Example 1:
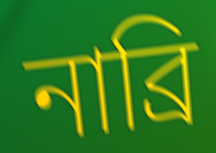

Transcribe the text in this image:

নাব্রি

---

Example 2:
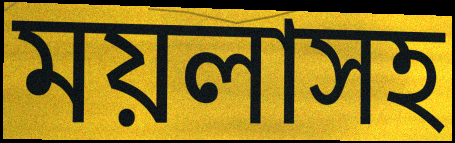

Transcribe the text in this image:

ময়লাসহ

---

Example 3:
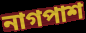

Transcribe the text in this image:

নাগপাশ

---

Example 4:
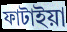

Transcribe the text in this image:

ফাটাইয়া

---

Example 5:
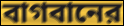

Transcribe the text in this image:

বাগবানের